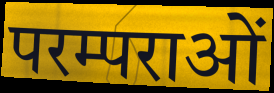
परम्पराओं